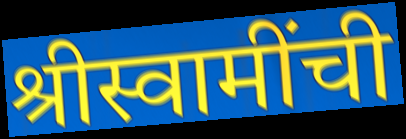
श्रीस्वामींची